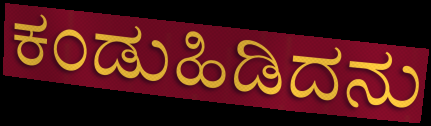
ಕಂಡುಹಿಡಿದನು